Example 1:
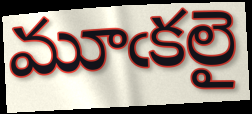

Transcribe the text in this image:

మూఁకలై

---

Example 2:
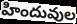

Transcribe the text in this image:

హిందువుల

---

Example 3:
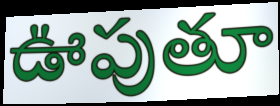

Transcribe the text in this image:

ఊపుతూ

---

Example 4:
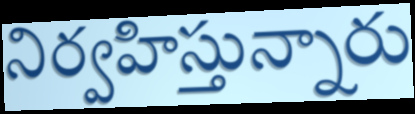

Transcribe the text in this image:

నిర్వహిస్తున్నారు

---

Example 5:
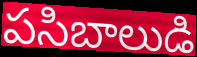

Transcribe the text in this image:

పసిబాలుడి